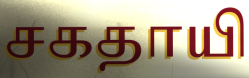
சகதாயி